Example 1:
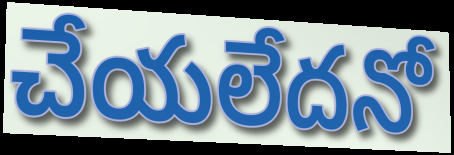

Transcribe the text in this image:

చేయలేదనో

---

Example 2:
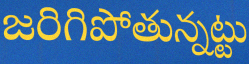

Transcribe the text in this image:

జరిగిపోతున్నట్టు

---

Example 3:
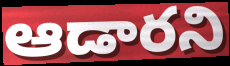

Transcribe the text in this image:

ఆడారని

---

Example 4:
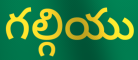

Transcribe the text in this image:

గల్గియు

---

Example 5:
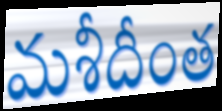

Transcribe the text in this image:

మశీదీంత